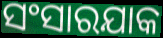
ସଂସାରଯାକ